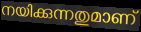
നയിക്കുന്നതുമാണ്